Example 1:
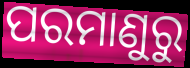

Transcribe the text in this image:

ପରମାଣୁରୁ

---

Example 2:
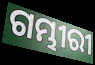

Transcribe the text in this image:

ଗମ୍ଭୀରୀ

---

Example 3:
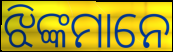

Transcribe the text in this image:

ଝିଙ୍କମାନେ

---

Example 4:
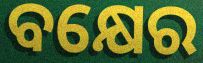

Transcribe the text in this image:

ବକ୍ଷେର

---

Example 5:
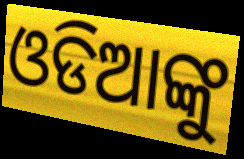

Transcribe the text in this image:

ଓଡିଆଙ୍କୁ